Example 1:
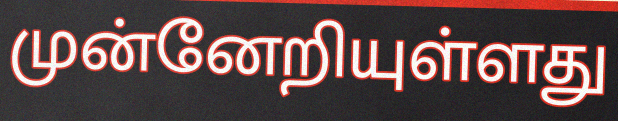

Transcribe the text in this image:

முன்னேறியுள்ளது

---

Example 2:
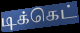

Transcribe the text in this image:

டிக்கெட்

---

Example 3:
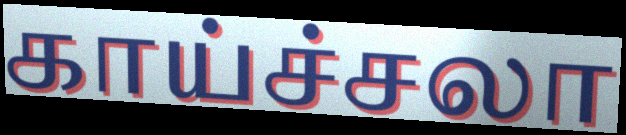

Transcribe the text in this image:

காய்ச்சலா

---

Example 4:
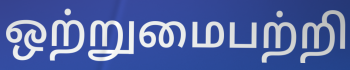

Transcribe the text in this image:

ஒற்றுமைபற்றி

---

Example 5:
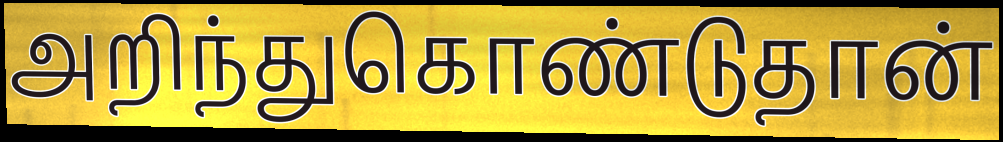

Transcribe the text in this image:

அறிந்துகொண்டுதான்